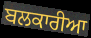
ਬਲਕਾਰੀਆ